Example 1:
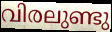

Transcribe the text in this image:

വിരലുണ്ടു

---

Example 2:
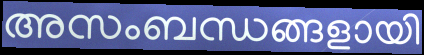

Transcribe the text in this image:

അസംബന്ധങ്ങളായി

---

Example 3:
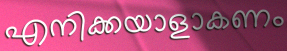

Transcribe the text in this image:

എനിക്കയാളാകണം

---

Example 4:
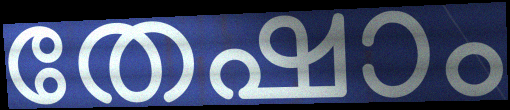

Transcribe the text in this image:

തേഷാം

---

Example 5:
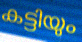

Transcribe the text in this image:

കട്ടിയും